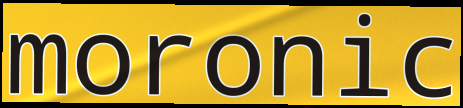
moronic